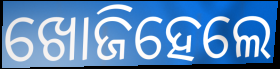
ଖୋଜିହେଲେ